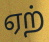
ஏற்